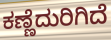
ಕಣ್ಣೆದುರಿಗಿದೆ